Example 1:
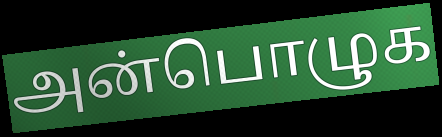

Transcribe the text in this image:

அன்பொழுக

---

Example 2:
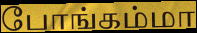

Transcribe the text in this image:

போங்கம்மா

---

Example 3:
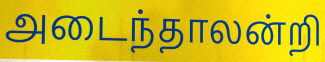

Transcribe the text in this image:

அடைந்தாலன்றி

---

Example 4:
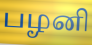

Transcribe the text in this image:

பழனி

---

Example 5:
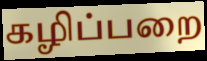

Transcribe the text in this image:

கழிப்பறை